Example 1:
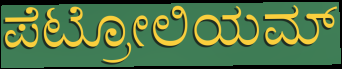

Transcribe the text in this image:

ಪೆಟ್ರೋಲಿಯಮ್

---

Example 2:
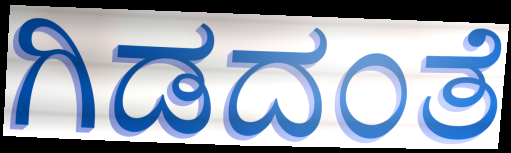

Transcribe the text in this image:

ಗಿಡದಂತೆ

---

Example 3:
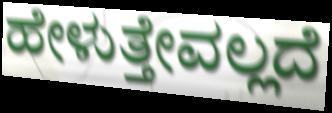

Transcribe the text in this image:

ಹೇಳುತ್ತೇವಲ್ಲದೆ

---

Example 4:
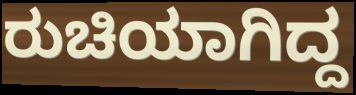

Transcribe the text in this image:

ರುಚಿಯಾಗಿದ್ದ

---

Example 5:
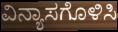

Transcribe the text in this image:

ವಿನ್ಯಾಸಗೊಳಿಸಿ